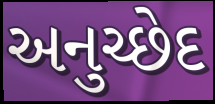
અનુચ્છેદ